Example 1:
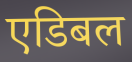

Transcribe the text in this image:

एडिबल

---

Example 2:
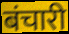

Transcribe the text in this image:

बंचारी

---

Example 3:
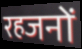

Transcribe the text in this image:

रहजनों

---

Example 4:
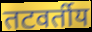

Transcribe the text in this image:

तटवर्तीय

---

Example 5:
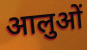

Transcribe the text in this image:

आलुओं